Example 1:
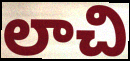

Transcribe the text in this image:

లాచి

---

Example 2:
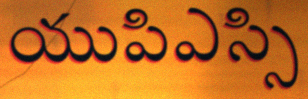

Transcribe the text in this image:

యుపిఎస్సి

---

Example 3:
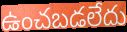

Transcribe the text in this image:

ఉంచబడలేదు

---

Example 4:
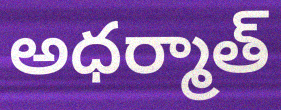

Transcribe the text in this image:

అధర్మాత్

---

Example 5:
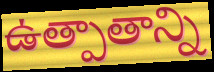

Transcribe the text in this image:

ఉత్పాతాన్ని